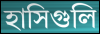
হাসিগুলি